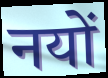
नयों